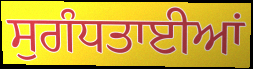
ਸੁਗੰਧਤਾਈਆਂ